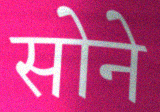
सोने